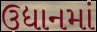
ઉદ્યાનમાં